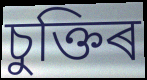
চুক্তিৰ